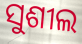
ସୁଶୀଲ